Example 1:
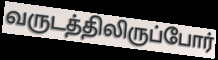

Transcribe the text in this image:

வருடத்திலிருப்போர்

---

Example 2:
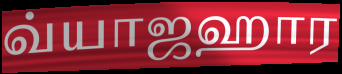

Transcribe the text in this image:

வ்யாஜஹார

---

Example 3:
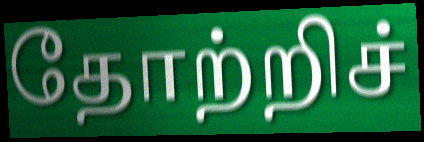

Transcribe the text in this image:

தோற்றிச்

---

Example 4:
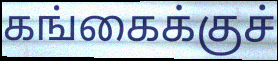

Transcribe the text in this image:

கங்கைக்குச்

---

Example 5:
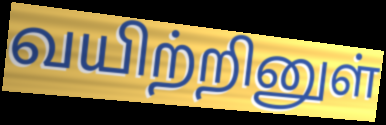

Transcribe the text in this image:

வயிற்றினுள்